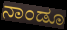
ನಾಂಡೂ